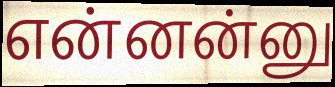
என்னன்னு